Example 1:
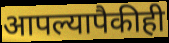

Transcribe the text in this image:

आपल्यापैकीही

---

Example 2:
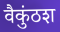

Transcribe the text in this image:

वैकुंठश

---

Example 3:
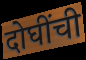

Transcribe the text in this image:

दोघींची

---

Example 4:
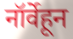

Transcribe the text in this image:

नॉर्वेहून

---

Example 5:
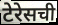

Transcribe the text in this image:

टेरेसची